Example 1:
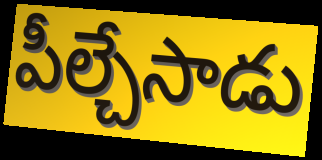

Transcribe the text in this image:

పీల్చేసాడు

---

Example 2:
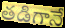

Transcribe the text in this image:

తడిగానే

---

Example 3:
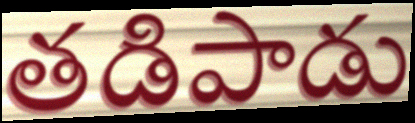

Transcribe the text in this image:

తడిపాడు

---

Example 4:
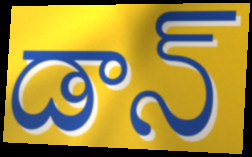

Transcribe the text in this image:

డాన్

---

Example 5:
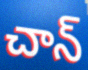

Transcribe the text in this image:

చాన్